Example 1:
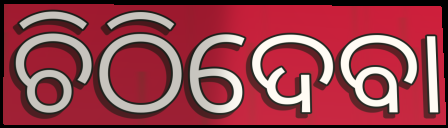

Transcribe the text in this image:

ଚିଠିଦେବା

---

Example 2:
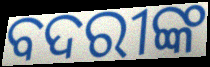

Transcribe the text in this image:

ବଦରୀଙ୍କ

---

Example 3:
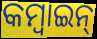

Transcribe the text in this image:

କମ୍ବାଇନ୍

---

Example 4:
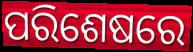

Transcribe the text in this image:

ପରିଶେଷରେ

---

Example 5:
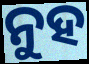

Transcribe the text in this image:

ନୁହ